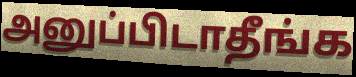
அனுப்பிடாதீங்க